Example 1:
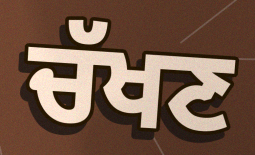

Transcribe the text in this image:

ਚੱਖਣ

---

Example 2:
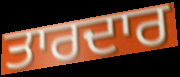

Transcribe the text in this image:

ਤਾਰਦਾਰ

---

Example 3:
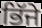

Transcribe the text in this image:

ਭਿੱਜੇ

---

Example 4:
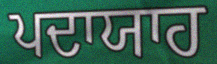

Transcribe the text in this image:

ਪਦਾਯਾਹ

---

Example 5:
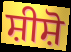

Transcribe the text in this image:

ਸ਼ੀਸ਼ੋ